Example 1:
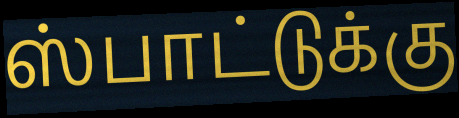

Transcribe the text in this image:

ஸ்பாட்டுக்கு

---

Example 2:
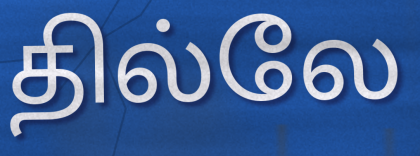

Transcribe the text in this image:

தில்லே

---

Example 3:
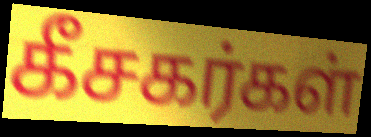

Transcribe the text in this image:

கீசகர்கள்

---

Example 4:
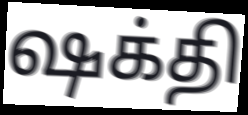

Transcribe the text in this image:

ஷக்தி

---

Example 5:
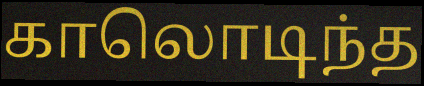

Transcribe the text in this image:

காலொடிந்த